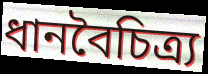
ধানবৈচিত্র্য